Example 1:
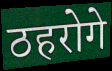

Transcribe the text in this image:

ठहरोगे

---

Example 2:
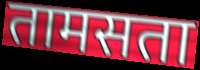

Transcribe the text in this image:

तामसता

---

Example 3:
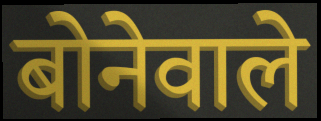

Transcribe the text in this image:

बोनेवाले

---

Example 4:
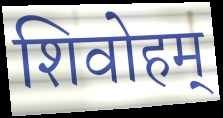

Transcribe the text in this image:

शिवोहम्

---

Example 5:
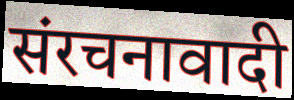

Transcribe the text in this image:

संरचनावादी